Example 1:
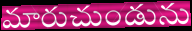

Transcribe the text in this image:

మారుచుండును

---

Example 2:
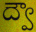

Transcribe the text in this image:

ద్వౌ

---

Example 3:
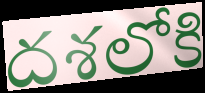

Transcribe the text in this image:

దశలోకి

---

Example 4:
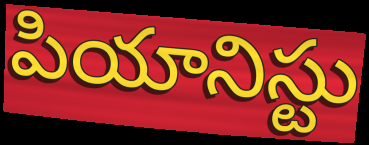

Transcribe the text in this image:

పియానిస్టు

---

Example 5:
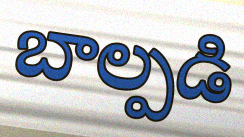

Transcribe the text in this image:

బాల్పడి